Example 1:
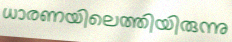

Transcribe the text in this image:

ധാരണയിലെത്തിയിരുന്നു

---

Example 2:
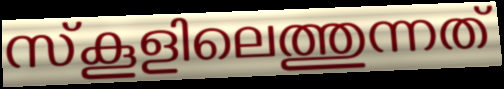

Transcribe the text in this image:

സ്‌കൂളിലെത്തുന്നത്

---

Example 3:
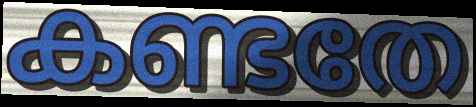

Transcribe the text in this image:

കണ്ടതേ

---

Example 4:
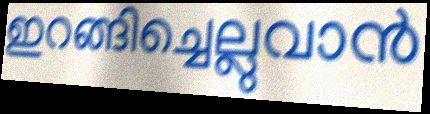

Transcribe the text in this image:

ഇറങ്ങിച്ചെല്ലുവാൻ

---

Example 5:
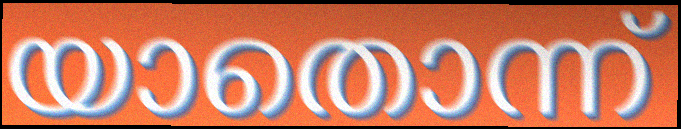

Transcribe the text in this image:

യാതൊന്ന്